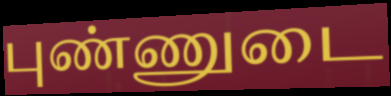
புண்ணுடை